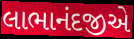
લાભાનંદજીએ